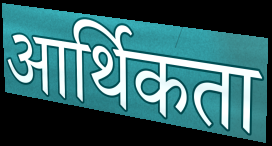
आर्थिकता